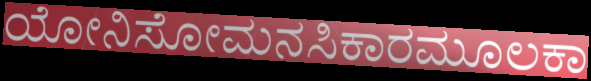
ಯೋನಿಸೋಮನಸಿಕಾರಮೂಲಕಾ